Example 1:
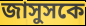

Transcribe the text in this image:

জাসুসকে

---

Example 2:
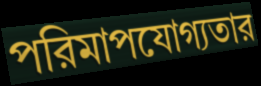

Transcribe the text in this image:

পরিমাপযোগ্যতার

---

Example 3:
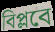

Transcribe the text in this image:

বিপ্লবে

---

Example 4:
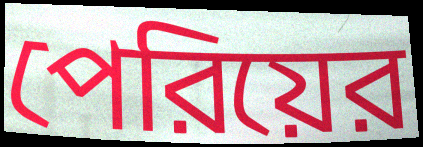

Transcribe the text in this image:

পেরিয়ের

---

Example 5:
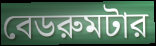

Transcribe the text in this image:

বেডরুমটার